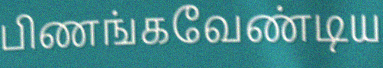
பிணங்கவேண்டிய